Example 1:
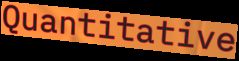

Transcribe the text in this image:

Quantitative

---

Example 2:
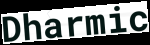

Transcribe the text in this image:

Dharmic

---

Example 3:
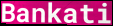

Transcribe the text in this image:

Bankati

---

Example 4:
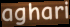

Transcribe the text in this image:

aghari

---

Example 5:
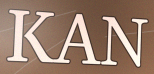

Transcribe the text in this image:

KAN